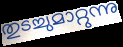
തുടച്ചുമാറ്റുന്നു